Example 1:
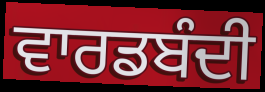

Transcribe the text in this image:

ਵਾਰਡਬੰਦੀ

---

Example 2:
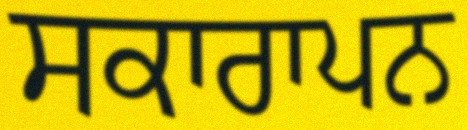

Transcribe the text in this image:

ਸਕਾਰਾਪਨ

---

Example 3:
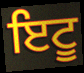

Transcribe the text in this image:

ਇਟੂ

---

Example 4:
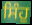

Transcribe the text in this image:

ਸਿੰਹੁ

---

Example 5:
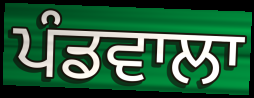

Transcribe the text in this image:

ਪੰਡਵਾਲਾ